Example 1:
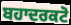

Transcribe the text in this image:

ਬਹਾਦਰਕਟੋ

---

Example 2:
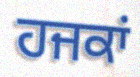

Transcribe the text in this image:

ਹਜਕਾਂ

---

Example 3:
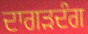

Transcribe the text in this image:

ਦਾਗੜਦੰਗ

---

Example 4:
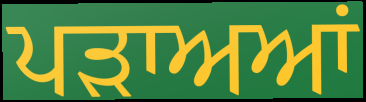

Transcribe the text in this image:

ਪੜਾਅਆਂ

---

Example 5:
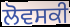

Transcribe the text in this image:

ਲੋਵਸਕੀ